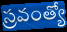
స్రవంత్యో